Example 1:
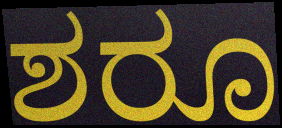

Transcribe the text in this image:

ಶರೂ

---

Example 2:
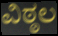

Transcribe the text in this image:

ವಿಠ್ಠಲ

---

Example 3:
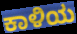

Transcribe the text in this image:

ಕಾಳಿಯ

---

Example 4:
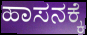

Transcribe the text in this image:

ಹಾಸನಕ್ಕೆ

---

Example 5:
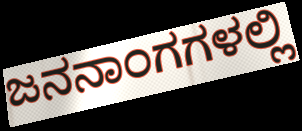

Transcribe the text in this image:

ಜನನಾಂಗಗಳಲ್ಲಿ